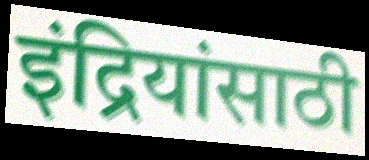
इंद्रियांसाठी